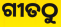
ଗୀତଠୁ